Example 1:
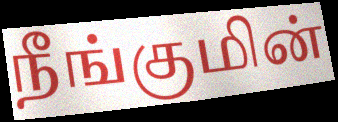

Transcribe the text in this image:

நீங்குமின்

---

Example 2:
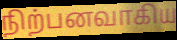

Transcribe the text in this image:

நிற்பனவாகிய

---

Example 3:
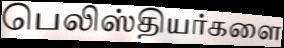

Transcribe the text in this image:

பெலிஸ்தியர்களை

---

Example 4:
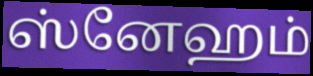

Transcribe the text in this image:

ஸ்னேஹம்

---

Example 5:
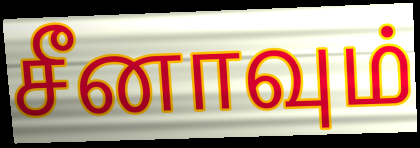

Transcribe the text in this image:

சீனாவும்